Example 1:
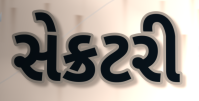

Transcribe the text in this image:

સેક્રટરી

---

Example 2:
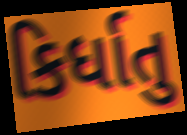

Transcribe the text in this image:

કિર્ધાતુ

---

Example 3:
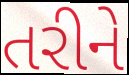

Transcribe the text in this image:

તરીને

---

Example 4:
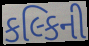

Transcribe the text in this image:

કલ્કિની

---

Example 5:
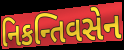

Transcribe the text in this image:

નિકન્તિવસેન